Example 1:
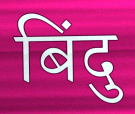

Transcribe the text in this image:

बिंदु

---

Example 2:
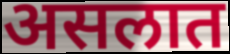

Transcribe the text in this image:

असलात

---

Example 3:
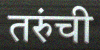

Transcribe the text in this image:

तरुंची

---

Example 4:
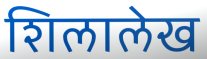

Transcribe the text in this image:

शिलालेख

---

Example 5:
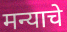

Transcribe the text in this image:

मन्याचे